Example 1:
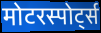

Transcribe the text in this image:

मोटरस्पोर्ट्स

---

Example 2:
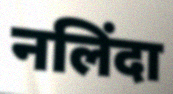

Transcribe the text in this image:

नलिंदा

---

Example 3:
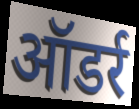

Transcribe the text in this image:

ऑडर्र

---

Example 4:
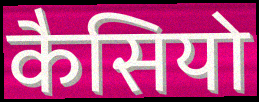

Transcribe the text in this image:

कैसियो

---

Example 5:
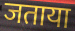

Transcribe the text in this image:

जताया